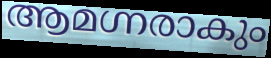
ആമഗ്നരാകും